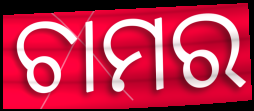
ଚାମର